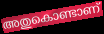
അതുകൊണ്ടാണ്